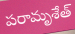
పరామృశేత్